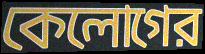
কেলোগের